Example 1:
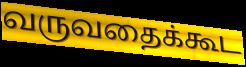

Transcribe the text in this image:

வருவதைக்கூட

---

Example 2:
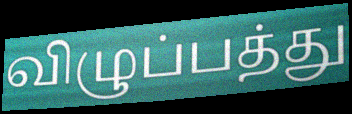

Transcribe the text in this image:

விழுப்பத்து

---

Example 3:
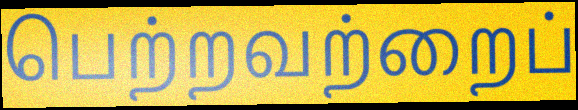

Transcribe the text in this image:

பெற்றவற்றைப்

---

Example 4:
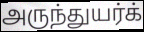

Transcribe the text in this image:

அருந்துயர்க்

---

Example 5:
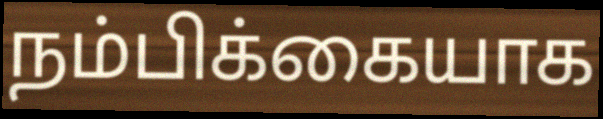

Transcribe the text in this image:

நம்பிக்கையாக